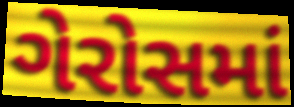
ગેરોસમાં